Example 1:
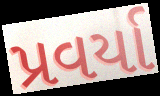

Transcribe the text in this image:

પ્રવર્યા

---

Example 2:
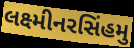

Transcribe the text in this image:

લક્ષ્મીનરસિંહમુ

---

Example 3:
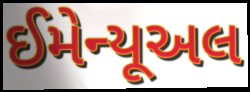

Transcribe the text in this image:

ઈમેન્યૂઅલ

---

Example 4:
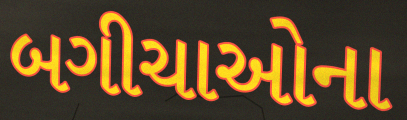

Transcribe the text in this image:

બગીચાઓના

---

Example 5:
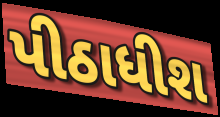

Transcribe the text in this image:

પીઠાધીશ